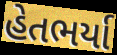
હેતભર્યા